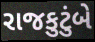
રાજકુટુંબે